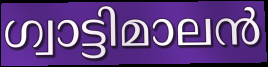
ഗ്വാട്ടിമാലൻ